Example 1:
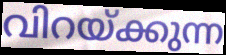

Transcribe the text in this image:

വിറയ്ക്കുന്ന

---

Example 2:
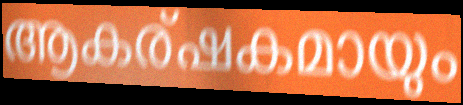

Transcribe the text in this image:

ആകര്ഷകമായും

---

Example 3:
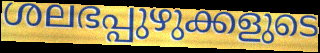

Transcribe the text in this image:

ശലഭപ്പുഴുക്കളുടെ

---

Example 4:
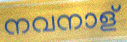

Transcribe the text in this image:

നവനാള്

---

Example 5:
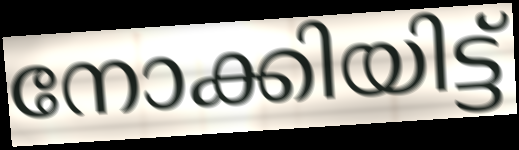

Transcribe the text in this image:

നോക്കിയിട്ട്